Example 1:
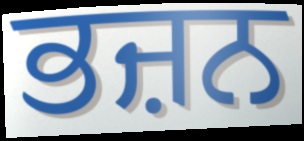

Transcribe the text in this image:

ਭਜ਼ਨ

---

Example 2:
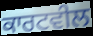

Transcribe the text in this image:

ਕਾਰਟਵੀਲ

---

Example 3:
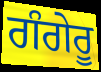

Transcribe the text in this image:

ਗੰਗੇਰੂ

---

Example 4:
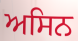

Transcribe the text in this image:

ਅਸਿਨ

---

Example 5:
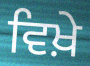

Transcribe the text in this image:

ਵਿਖ਼ੇ